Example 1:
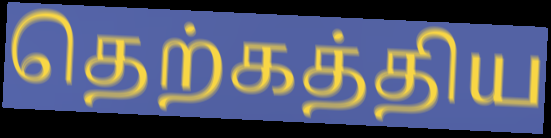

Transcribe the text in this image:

தெற்கத்திய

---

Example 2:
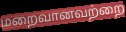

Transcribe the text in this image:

மறைவானவற்றை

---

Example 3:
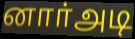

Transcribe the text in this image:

னார்அடி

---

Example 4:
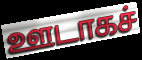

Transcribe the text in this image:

ஊடாகச்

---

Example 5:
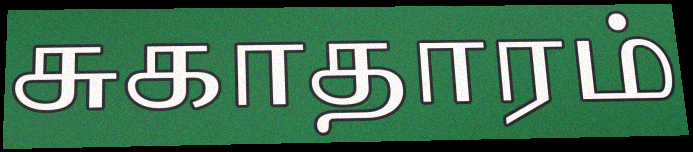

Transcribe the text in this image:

சுகாதாரம்